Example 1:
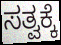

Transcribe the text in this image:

ಸತ್ವಕ್ಕೆ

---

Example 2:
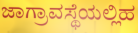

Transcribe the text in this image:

ಜಾಗ್ರಾವಸ್ಥೆಯಲ್ಲಿಹ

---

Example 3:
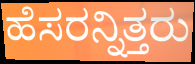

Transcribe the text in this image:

ಹೆಸರನ್ನಿತ್ತರು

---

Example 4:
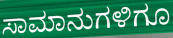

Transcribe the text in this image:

ಸಾಮಾನುಗಳಿಗೂ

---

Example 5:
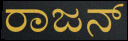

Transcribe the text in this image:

ರಾಜನ್